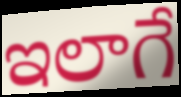
ఇలాగే